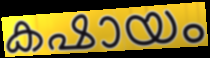
കഷായം